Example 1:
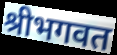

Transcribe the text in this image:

श्रीभगवत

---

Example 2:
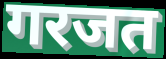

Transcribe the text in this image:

गरजत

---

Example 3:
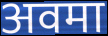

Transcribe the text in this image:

अवमा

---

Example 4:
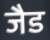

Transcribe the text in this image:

जैड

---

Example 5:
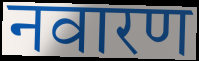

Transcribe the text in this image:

नवारण